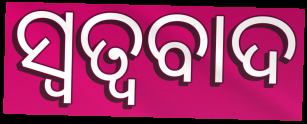
ସ୍ୱତ୍ୱବାଦ